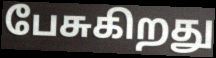
பேசுகிறது